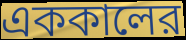
এককালের